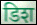
डिश